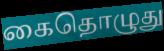
கைதொழுது